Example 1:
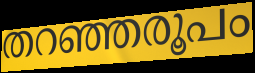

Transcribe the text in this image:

തറഞ്ഞരൂപം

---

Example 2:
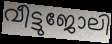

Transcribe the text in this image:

വീട്ടുജോലി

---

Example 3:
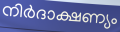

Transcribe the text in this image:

നിർദാക്ഷണ്യം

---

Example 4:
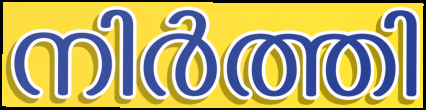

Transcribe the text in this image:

നിർത്തി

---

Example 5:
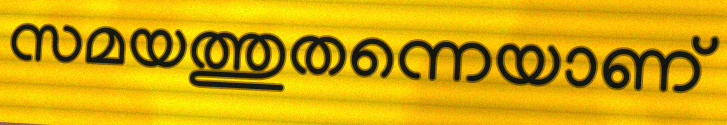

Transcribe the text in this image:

സമയത്തുതന്നെയാണ്